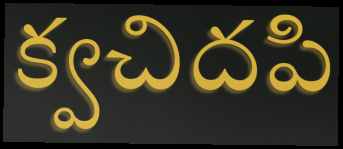
క్వచిదపి